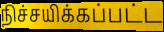
நிச்சயிக்கப்பட்ட